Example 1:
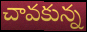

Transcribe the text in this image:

చావకున్న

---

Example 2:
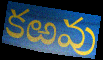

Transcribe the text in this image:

కఱవు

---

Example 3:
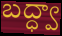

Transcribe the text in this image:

బద్ధ్వా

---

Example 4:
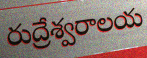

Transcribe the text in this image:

రుద్రేశ్వరాలయ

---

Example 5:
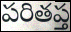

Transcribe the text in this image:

పరితప్త